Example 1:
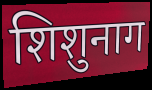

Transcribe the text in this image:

शिशुनाग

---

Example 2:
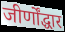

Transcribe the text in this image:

जीर्णोंद्धार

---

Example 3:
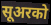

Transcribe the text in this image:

सूअरको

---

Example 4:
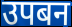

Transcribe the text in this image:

उपबन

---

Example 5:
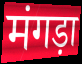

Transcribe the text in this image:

मंगड़ा